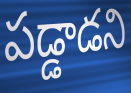
పడ్డాడని